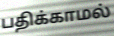
பதிக்காமல்